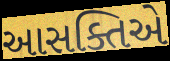
આસક્તિએ